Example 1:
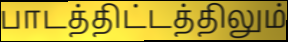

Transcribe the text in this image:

பாடத்திட்டத்திலும்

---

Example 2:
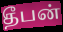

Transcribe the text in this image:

தீபன்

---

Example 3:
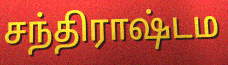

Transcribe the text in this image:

சந்திராஷ்டம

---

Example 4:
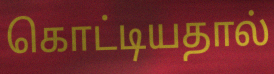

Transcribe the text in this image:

கொட்டியதால்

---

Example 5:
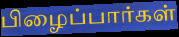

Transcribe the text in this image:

பிழைப்பார்கள்